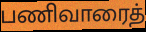
பணிவாரைத்